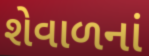
શેવાળનાં